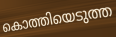
കൊത്തിയെടുത്ത